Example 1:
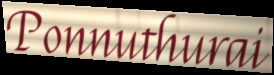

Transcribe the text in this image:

Ponnuthurai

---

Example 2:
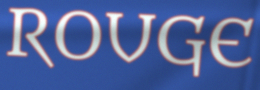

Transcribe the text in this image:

ROUGE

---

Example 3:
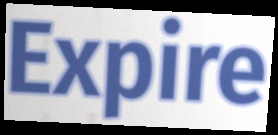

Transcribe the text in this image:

Expire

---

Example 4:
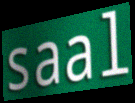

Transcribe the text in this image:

saal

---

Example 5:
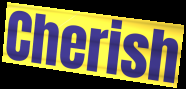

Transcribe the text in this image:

Cherish